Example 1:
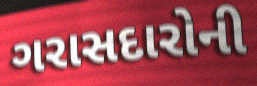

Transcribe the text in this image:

ગરાસદારોની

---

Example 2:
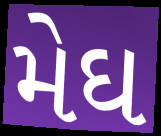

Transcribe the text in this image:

મેઘ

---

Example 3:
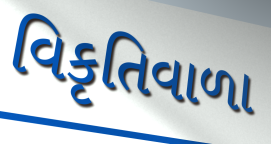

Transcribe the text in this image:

વિકૃતિવાળા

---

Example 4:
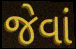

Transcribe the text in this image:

જેવાં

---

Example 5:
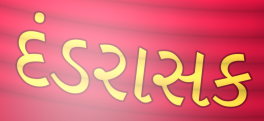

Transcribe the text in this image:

દંડરાસક